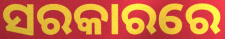
ସରକାରରେ